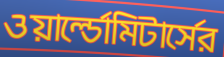
ওয়ার্ল্ডোমিটার্সের